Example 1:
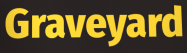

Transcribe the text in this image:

Graveyard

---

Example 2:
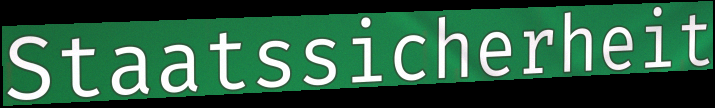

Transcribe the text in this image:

Staatssicherheit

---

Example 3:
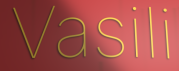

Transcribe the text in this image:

Vasili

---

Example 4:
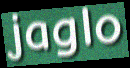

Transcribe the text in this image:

jaglo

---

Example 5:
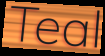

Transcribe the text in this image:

Teal